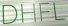
DHFL